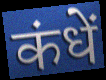
कंधें